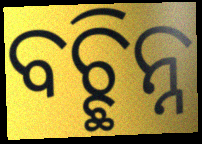
ବଚ୍ଛିନ୍ନ